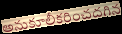
అనుకూలీకరించదగిన